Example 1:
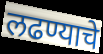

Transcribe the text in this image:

लढण्याचे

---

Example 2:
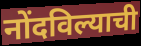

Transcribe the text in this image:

नोंदविल्याची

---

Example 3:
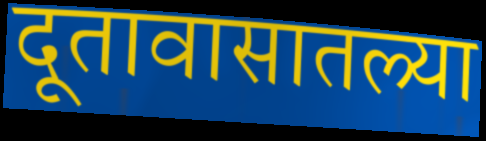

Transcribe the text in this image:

दूतावासातल्या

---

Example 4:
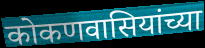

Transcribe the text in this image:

कोकणवासियांच्या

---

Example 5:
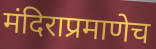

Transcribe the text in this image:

मंदिराप्रमाणेच